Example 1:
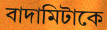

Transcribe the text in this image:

বাদামিটাকে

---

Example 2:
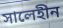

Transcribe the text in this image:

সালেহীন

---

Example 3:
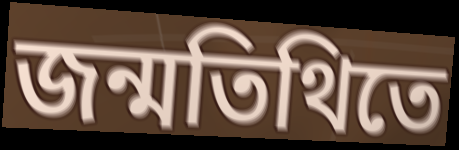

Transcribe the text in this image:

জন্মতিথিতে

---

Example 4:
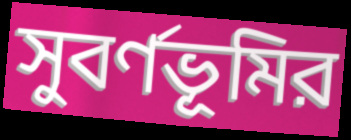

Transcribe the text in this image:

সুবর্ণভূমির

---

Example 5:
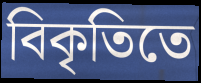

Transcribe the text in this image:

বিকৃতিতে